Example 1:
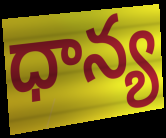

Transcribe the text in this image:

ధాన్య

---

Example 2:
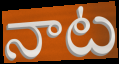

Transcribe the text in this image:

నాట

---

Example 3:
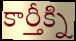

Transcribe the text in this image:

కార్తీక్ని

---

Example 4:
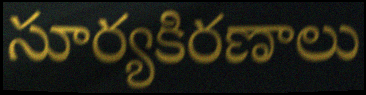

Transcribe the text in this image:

సూర్యకిరణాలు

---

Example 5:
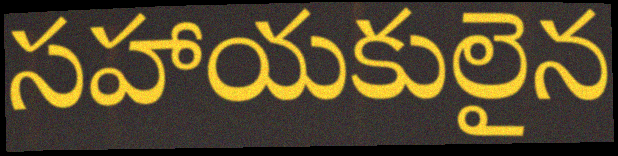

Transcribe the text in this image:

సహాయకులైన